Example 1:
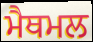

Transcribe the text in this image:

ਮੈਥਮਲ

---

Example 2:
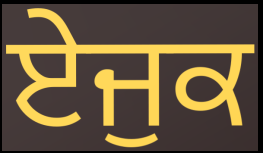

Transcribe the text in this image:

ਏਜੁਕ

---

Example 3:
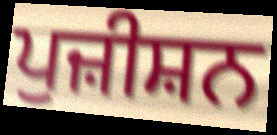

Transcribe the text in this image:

ਪੁਜ਼ੀਸ਼ਨ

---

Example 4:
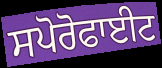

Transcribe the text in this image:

ਸਪੋਰੋਫਾਈਟ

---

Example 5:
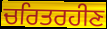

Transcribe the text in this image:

ਚਰਿਤਰਹੀਣ